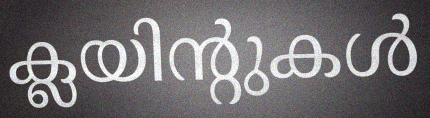
ക്ലയിന്റുകൾ